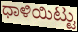
ಧಾಳಿಯಿಟ್ಟು